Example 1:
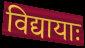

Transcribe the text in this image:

विद्यायाः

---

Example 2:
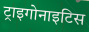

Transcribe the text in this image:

ट्राइगोनाइटिस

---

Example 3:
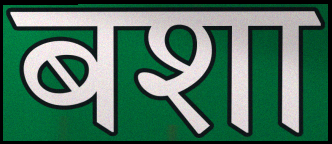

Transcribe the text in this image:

बशा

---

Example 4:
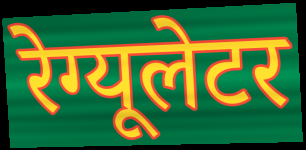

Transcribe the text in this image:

रेग्यूलेटर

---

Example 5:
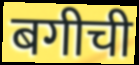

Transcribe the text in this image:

बगीची